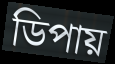
ডিপায়